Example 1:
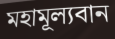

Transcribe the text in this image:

মহামূল্যবান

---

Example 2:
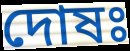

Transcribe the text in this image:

দোষঃ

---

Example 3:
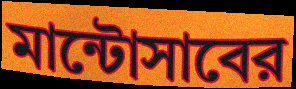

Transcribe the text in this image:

মান্টোসাবের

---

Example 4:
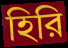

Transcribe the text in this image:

হিরি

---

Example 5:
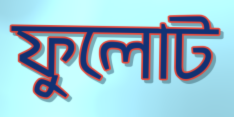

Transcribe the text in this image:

ফুলোট